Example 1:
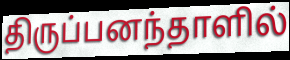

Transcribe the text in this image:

திருப்பனந்தாளில்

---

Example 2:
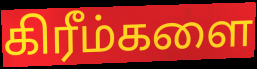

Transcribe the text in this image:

கிரீம்களை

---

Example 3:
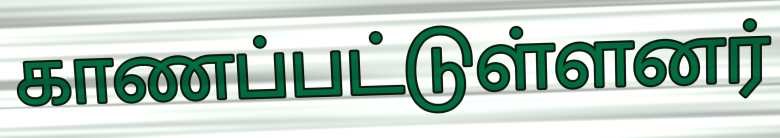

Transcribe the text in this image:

காணப்பட்டுள்ளனர்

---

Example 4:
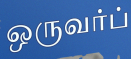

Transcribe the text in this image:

ஒருவர்ப்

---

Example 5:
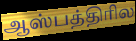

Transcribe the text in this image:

ஆஸ்பத்திரில